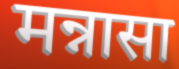
मन्नासा